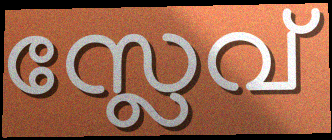
സ്ലേവ്